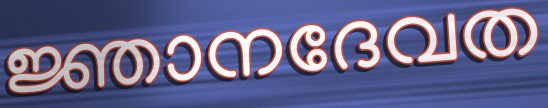
ജ്ഞാനദേവത